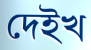
দেইখ